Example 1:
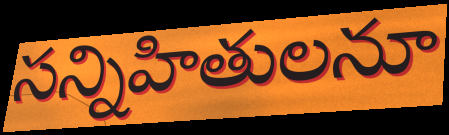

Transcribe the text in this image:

సన్నిహితులనూ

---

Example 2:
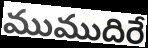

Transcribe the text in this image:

ముముదిరే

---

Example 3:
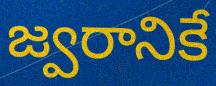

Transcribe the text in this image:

జ్వరానికే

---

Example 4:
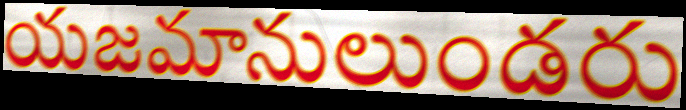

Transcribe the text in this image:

యజమానులుండరు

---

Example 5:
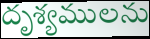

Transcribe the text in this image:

దృశ్యములను